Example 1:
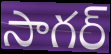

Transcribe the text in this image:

సాగర్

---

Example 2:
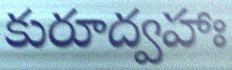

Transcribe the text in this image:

కురూద్వహాః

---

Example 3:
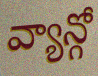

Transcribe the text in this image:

వ్యాన్గో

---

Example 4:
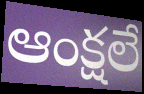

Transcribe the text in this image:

ఆంక్షలే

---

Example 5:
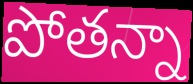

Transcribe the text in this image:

పోతన్నా